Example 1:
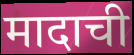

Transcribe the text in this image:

मादाची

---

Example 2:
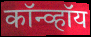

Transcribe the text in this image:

कॉन्व्हॉय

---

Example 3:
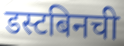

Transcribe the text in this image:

डस्टबिनची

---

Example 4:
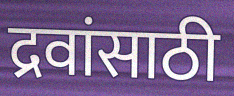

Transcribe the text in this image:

द्रवांसाठी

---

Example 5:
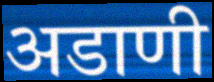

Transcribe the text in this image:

अडाणी